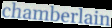
chamberlain